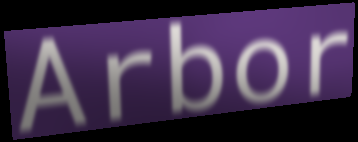
Arbor